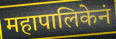
महापालिकेनं